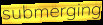
submerging